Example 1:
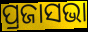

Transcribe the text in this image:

ପ୍ରଜାସଭା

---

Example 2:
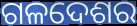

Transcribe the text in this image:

ଗଳଦେଶର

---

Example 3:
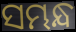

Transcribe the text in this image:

ସମ୍ଭନ୍ଧ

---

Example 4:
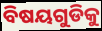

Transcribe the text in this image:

ବିଷୟଗୁଡିକୁ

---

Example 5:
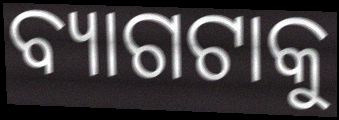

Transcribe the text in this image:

ବ୍ୟାଗଟାକୁ